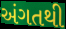
અંગતથી